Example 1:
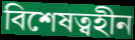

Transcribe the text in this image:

বিশেষত্বহীন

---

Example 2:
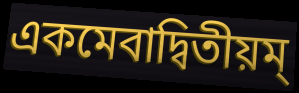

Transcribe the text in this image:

একমেবাদ্বিতীয়ম্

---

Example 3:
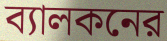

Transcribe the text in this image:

ব্যালকনের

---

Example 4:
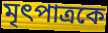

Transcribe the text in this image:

মৃৎপাত্রকে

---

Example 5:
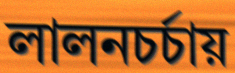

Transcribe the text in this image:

লালনচর্চায়